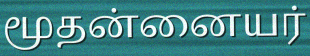
மூதன்னையர்